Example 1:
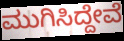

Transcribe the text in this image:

ಮುಗಿಸಿದ್ದೇವೆ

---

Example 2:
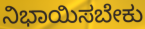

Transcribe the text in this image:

ನಿಭಾಯಿಸಬೇಕು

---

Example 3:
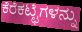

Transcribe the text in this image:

ಕೆರೆಕಟ್ಟೆಗಳನ್ನು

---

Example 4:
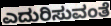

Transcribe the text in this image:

ಎದುರಿಸುವಂತೆ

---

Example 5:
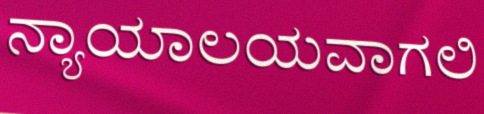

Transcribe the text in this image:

ನ್ಯಾಯಾಲಯವಾಗಲಿ